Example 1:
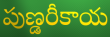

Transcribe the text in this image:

పుణ్డరీకాయ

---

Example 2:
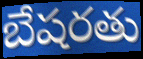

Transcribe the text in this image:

బేషరతు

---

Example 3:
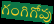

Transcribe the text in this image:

గంగిగోవు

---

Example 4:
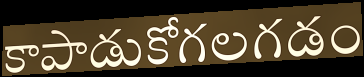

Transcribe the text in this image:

కాపాడుకోగలగడం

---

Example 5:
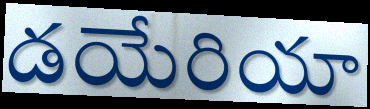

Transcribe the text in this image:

డయేరియా